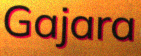
Gajara